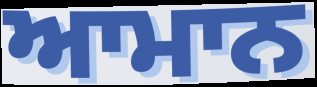
ਆਮਾਨ